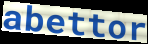
abettor